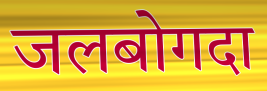
जलबोगदा